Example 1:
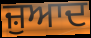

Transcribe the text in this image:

ਜ਼ੁਆਦ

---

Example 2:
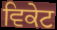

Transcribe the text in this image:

ਵਿਕੇਟ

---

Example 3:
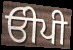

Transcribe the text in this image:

ਓੀਪੀ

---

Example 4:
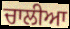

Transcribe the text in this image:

ਚਾਲੀਆ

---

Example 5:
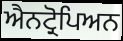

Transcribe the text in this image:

ਐਨਟ੍ਰੋਪਿਅਨ